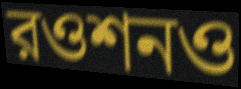
রওশনও